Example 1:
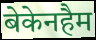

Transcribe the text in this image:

बेकेनहैम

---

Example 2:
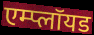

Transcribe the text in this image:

एम्प्लॉयड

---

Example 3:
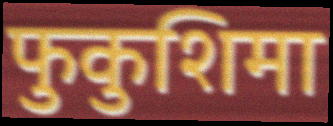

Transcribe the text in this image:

फुकुशिमा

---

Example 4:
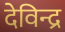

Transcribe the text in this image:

देविन्द्र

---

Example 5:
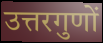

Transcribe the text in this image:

उत्तरगुणों